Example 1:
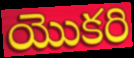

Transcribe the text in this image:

యొకరి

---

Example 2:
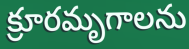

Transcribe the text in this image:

క్రూరమృగాలను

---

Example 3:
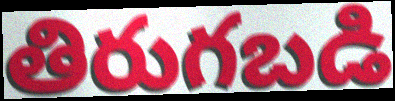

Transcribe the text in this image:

తిరుగబడి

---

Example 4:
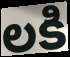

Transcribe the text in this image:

లకి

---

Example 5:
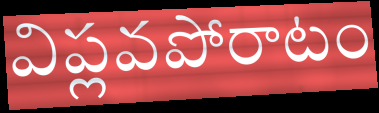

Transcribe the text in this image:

విప్లవపోరాటం